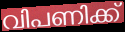
വിപണിക്ക്